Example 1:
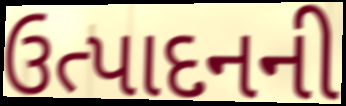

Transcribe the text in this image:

ઉત્પાદનની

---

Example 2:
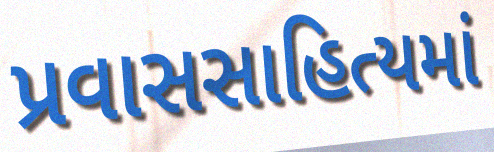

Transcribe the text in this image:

પ્રવાસસાહિત્યમાં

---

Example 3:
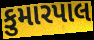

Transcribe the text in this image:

કુમારપાલ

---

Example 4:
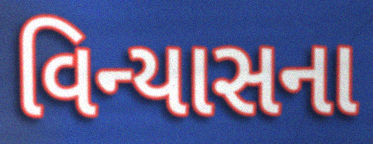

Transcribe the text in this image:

વિન્યાસના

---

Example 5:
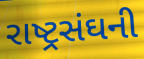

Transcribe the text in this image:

રાષ્ટ્રસંઘની